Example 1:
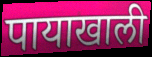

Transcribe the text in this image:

पायाखाली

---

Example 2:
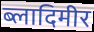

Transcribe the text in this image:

ब्लादिमीर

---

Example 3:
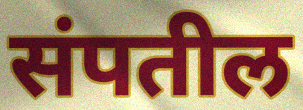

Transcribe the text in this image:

संपतील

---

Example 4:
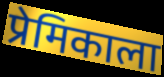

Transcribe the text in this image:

प्रेमिकाला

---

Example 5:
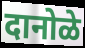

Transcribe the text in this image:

दानोळे